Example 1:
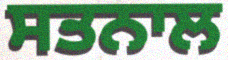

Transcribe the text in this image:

ਸਤਨਾਲ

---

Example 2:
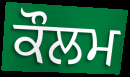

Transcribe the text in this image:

ਕੌਲਮ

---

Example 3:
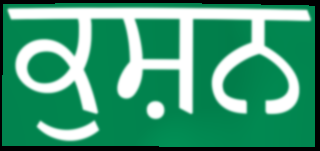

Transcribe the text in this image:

ਕੁਸ਼ਨ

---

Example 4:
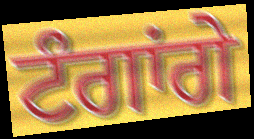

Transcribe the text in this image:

ਟੰਗਾਂਗੇ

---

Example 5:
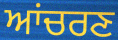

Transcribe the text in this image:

ਆਂਚਰਣ